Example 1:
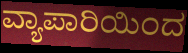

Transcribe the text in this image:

ವ್ಯಾಪಾರಿಯಿಂದ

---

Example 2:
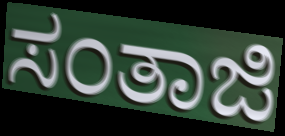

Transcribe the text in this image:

ಸಂತಾಜಿ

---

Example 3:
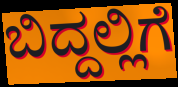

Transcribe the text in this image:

ಬಿದ್ದಲ್ಲಿಗೆ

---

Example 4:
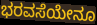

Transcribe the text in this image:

ಭರವಸೆಯೇನೂ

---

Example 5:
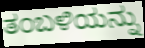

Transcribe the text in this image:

ತಂಬಳಿಯನ್ನು